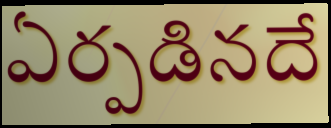
ఏర్పడినదే